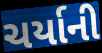
ચર્યાની